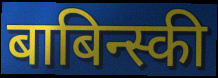
बाबिन्स्की